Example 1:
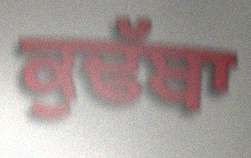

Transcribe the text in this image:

ਕੁਢੱਬਾ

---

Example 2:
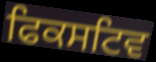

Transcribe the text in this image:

ਫਿਕਸਟਿਵ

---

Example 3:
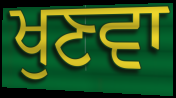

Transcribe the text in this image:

ਖੁਣਵਾ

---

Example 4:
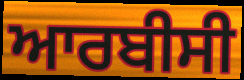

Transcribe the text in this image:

ਆਰਬੀਸੀ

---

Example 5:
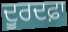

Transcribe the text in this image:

ਦੂਰਦਫ਼ਾ